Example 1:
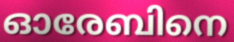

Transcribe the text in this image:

ഓരേബിനെ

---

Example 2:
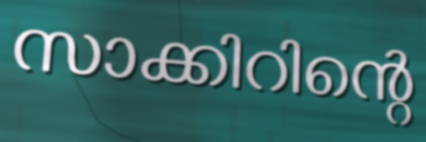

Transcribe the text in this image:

സാക്കിറിന്റെ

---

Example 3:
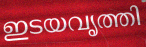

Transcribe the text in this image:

ഇടയവൃത്തി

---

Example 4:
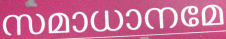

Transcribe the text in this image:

സമാധാനമേ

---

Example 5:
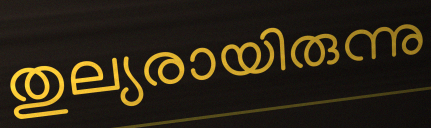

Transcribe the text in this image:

തുല്യരായിരുന്നു